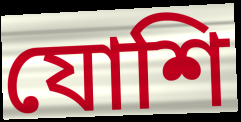
যোশি